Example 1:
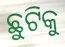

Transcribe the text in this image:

ଛୁଟିକୁ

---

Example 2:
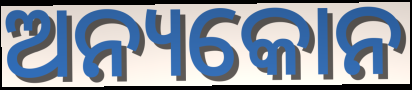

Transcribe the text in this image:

ଅନ୍ୟକୋନ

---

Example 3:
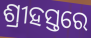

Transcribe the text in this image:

ଶ୍ରୀହସ୍ତରେ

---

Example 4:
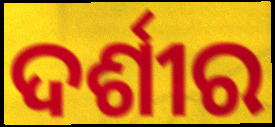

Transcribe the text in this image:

ଦର୍ଶୀର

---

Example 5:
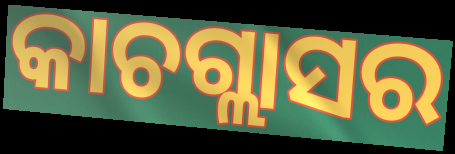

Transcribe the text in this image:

କାଚଗ୍ଲାସର